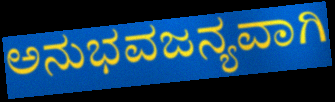
ಅನುಭವಜನ್ಯವಾಗಿ